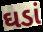
ઘડાં